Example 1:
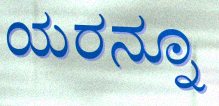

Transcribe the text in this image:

ಯರನ್ನೂ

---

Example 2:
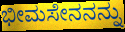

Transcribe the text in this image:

ಭೀಮಸೇನನನ್ನು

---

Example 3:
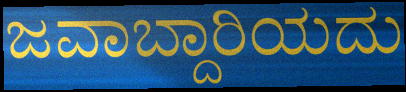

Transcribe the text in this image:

ಜವಾಬ್ದಾರಿಯದು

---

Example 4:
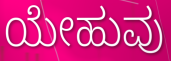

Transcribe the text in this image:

ಯೇಹುವು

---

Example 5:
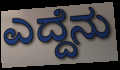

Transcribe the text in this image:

ಎದ್ದೆನು